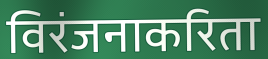
विरंजनाकरिता